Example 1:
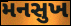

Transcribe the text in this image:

મનસુખ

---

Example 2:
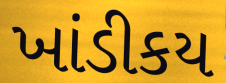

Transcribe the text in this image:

ખાંડીકય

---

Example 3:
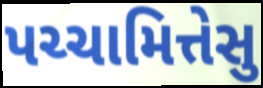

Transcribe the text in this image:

પચ્ચામિત્તેસુ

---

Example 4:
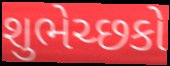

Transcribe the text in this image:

શુભેચ્છકો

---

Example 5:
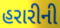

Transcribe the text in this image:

હરારીની